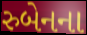
રુબેનના